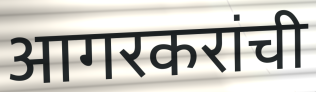
आगरकरांची